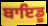
ਬਾਇਡੂ